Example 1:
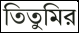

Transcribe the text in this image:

তিতুমির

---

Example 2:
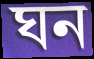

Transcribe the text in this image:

ঘন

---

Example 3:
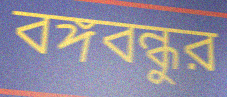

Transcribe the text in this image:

বঙ্গবন্ধুর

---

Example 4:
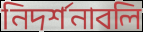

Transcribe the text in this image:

নিদর্শনাবলি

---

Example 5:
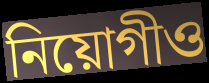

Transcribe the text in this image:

নিয়োগীও